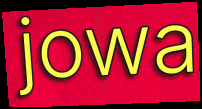
jowa